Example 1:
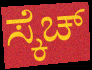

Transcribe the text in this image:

ಸ್ಕೆಚ್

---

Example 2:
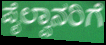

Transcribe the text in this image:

ಪೈಲ್ವಾನರಿಗೆ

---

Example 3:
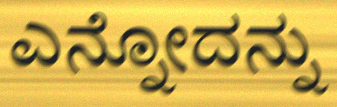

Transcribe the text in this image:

ಎನ್ನೋದನ್ನು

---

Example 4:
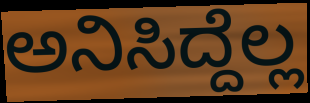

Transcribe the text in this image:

ಅನಿಸಿದ್ದೆಲ್ಲ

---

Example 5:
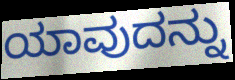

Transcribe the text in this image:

ಯಾವುದನ್ನು